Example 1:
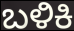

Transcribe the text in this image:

ಬಳಿಕಿ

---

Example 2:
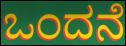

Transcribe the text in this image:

ಒಂದನೆ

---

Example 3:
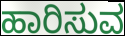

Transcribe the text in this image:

ಹಾರಿಸುವ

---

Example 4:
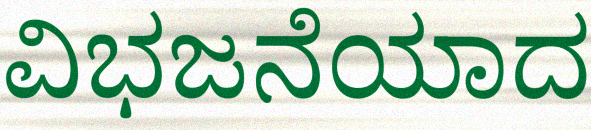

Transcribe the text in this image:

ವಿಭಜನೆಯಾದ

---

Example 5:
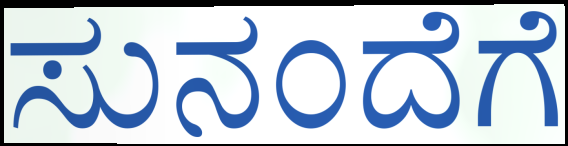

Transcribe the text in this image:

ಸುನಂದೆಗೆ